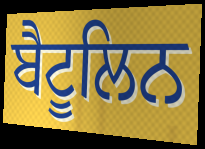
ਬੈਟੂਲਿਨ